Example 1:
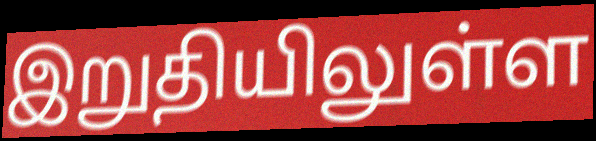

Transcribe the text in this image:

இறுதியிலுள்ள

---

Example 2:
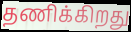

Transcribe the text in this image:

தணிக்கிறது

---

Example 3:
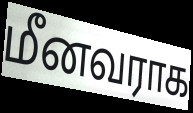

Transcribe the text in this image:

மீனவராக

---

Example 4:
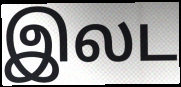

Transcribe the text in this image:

இலட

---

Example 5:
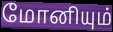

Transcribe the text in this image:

மோனியும்